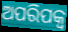
ଅପରିପକ୍ୱ